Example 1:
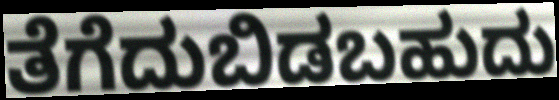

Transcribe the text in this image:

ತೆಗೆದುಬಿಡಬಹುದು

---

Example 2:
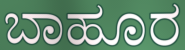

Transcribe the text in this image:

ಬಾಹೂರ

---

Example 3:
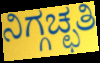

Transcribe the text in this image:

ನಿಗ್ಗಚ್ಛತಿ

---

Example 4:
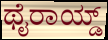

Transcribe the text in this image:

ಥೈರಾಯ್ಡ್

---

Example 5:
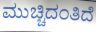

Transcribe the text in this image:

ಮುಚ್ಚಿದಂತಿದೆ